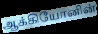
ஆக்கியோனின்